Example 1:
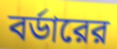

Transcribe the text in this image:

বর্ডারের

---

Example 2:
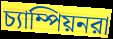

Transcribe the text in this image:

চ্যাম্পিয়নরা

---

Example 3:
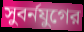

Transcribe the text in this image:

সুবর্নযুগের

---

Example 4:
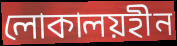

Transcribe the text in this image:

লোকালয়হীন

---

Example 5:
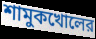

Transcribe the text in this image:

শামুকখোলের